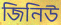
জিনিউ